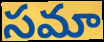
సమా